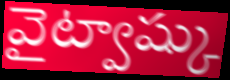
వైట్వాష్కు